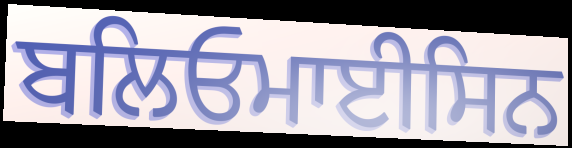
ਬਲਿਓਮਾਈਸਿਨ